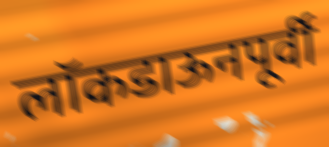
लॉकडाऊनपूर्वी